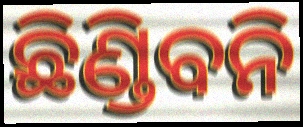
ଛିଣ୍ଡିବନି